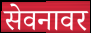
सेवनावर